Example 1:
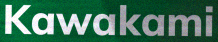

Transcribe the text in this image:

Kawakami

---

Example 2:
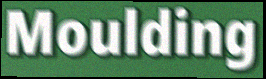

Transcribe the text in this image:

Moulding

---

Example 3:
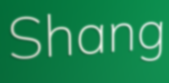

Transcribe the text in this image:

Shang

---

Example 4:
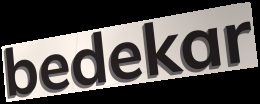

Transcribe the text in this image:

bedekar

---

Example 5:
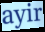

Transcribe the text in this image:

ayir